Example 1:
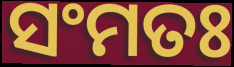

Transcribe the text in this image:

ସଂମତଃ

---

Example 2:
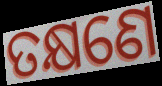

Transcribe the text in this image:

ତକ୍ଷଣେ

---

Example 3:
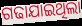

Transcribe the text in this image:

ଗଢାଯାଇଥିଲା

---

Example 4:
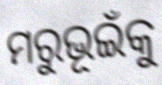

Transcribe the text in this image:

ମରୁଭୂଇଁକୁ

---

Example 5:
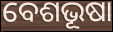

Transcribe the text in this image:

ବେଶଭୂଷା